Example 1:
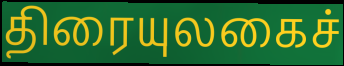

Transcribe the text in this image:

திரையுலகைச்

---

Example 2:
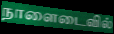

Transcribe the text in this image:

நாளைடைவில்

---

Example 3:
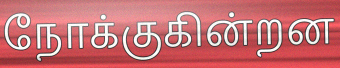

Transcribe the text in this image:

நோக்குகின்றன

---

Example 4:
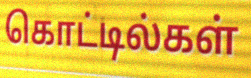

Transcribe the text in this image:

கொட்டில்கள்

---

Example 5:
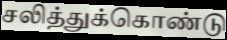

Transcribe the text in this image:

சலித்துக்கொண்டு